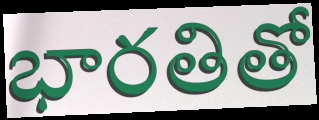
భారతితో